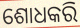
ଶୋଧକରି